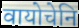
वायोचेनि